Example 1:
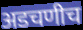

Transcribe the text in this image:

अडचणीच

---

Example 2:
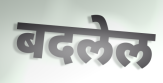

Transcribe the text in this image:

बदलेल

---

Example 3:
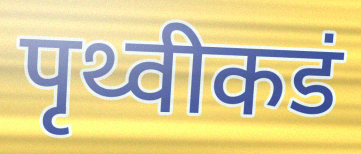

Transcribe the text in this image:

पृथ्वीकडं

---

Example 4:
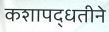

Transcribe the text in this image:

कशापद्धतीने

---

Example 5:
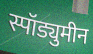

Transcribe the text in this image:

स्पॉड्युमीन